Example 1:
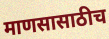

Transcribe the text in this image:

माणसासाठीच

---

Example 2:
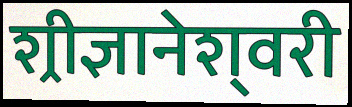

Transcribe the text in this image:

श्रीज्ञानेश्वरी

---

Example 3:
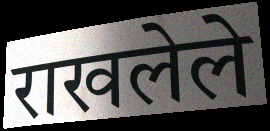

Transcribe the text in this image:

राखलेले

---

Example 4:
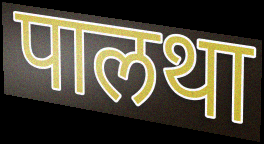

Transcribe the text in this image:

पालथा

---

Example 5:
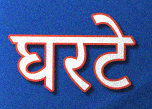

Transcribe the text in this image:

घरटे